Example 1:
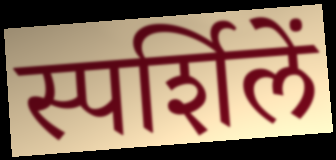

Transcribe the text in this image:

स्पर्शिलें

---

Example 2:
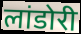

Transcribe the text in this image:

लांडोरी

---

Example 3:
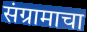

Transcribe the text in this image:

संग्रामाचा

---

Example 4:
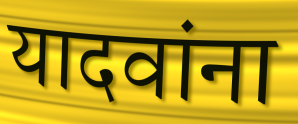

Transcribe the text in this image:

यादवांना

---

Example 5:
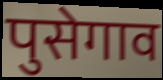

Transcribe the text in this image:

पुसेगाव